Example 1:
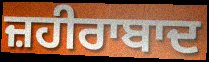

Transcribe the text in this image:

ਜ਼ਹੀਰਾਬਾਦ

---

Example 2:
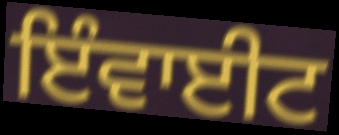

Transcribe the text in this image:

ਇੰਵਾਈਟ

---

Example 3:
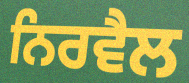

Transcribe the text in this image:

ਨਿਰਵੈਲ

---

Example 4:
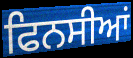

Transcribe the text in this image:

ਫਿਨਸੀਆਂ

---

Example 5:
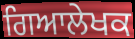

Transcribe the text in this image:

ਗਿਆਲੇਖਕ